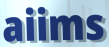
aiims